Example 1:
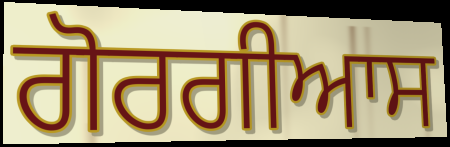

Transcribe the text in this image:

ਗੋਰਗੀਆਸ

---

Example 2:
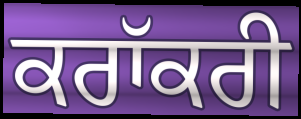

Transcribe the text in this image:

ਕਰਾੱਕਰੀ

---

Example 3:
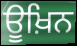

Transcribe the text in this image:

ਊਖ਼ਿਨ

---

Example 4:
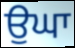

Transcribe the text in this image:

ਉਘਾ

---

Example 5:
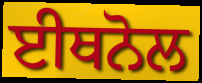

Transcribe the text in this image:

ਈਥਨੋਲ